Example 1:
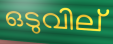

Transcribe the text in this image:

ഒടുവില്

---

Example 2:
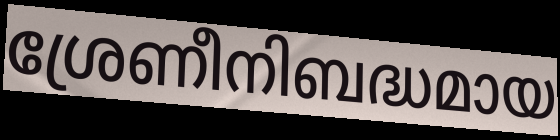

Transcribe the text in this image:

ശ്രേണീനിബദ്ധമായ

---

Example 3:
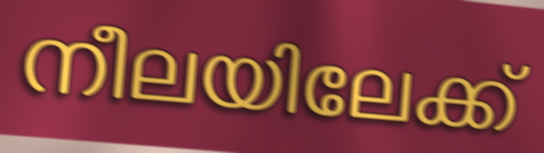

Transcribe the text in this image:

നീലയിലേക്ക്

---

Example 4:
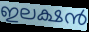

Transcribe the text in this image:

ഇലക്ഷൻ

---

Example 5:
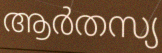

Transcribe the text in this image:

ആർതസ്യ